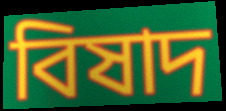
বিষাদ